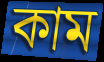
কাম